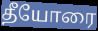
தீயோரை